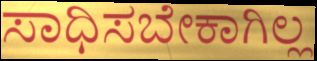
ಸಾಧಿಸಬೇಕಾಗಿಲ್ಲ